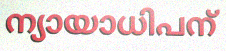
ന്യായാധിപന്